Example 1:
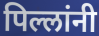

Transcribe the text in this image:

पिल्लांनी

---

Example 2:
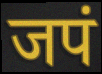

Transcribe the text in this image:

जपं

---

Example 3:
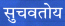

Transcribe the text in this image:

सुचवतोय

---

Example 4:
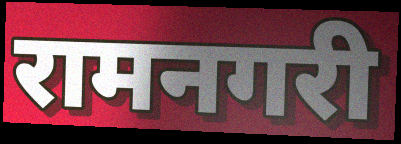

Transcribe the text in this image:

रामनगरी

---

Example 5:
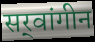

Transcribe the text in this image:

सर्वांगीन